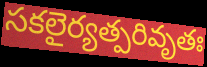
సకలైర్యత్పరివృతః